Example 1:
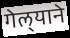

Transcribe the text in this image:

गेल्याने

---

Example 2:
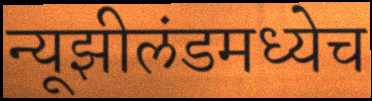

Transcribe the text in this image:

न्यूझीलंडमध्येच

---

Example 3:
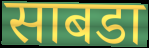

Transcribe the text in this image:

साबडा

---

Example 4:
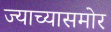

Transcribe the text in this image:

ज्याच्यासमोर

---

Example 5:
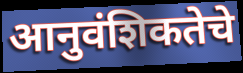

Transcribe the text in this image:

आनुवंशिकतेचे